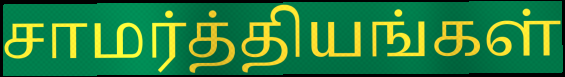
சாமர்த்தியங்கள்